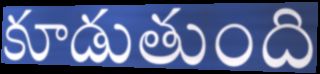
కూడుతుంది